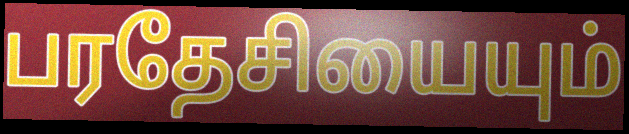
பரதேசியையும்